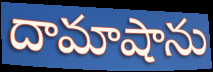
దామాషాను